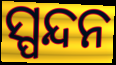
ସ୍ପନ୍ଦନ